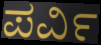
ಪರ್ವಿ